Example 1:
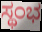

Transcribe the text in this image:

ಸ್ಥಂಭ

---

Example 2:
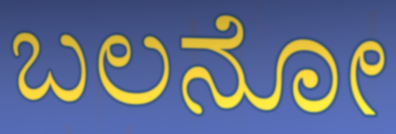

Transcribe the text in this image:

ಬಲನೋ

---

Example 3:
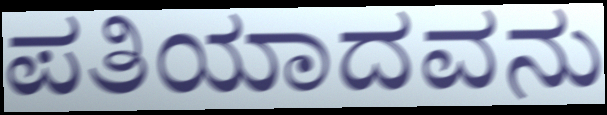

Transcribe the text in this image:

ಪತಿಯಾದವನು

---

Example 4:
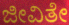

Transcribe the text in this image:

ಜೀವಿತೇ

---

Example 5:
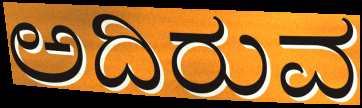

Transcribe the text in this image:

ಅದಿರುವ